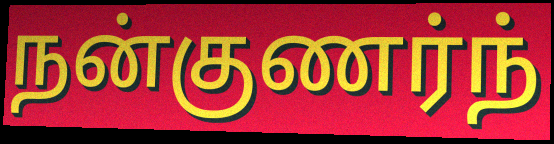
நன்குணர்ந்